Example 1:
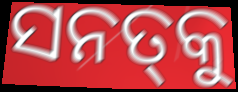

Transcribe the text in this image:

ସନତ୍‍କୁ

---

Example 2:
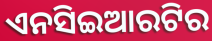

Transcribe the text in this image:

ଏନସିଇଆରଟିର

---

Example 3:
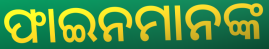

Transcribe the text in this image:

ଫାଇନମାନଙ୍କ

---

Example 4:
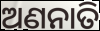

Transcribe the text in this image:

ଅଣନାତି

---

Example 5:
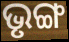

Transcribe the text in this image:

ଭୃଙ୍ଗ